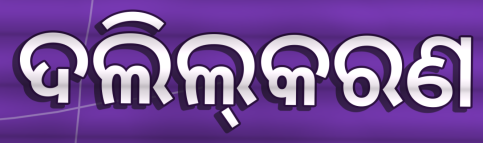
ଦଲିଲ୍‌କରଣ